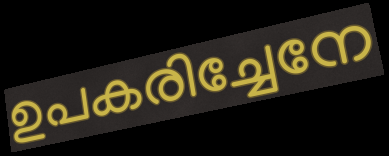
ഉപകരിച്ചേനേ